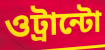
ওট্রান্টো